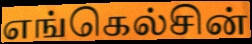
எங்கெல்சின்